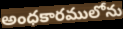
అంధకారములోను